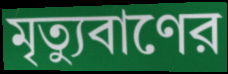
মৃত্যুবাণের